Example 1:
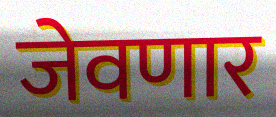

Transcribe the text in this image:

जेवणार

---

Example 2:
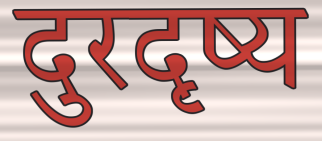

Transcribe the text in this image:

दुरदृष्य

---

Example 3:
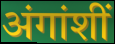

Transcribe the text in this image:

अंगांशीं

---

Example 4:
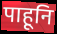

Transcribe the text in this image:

पाहूनि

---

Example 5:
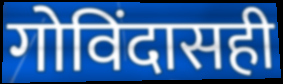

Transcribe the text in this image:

गोविंदासही